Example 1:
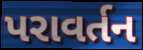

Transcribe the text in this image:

પરાવર્તન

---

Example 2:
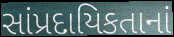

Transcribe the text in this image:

સાંપ્રદાયિકતાનાં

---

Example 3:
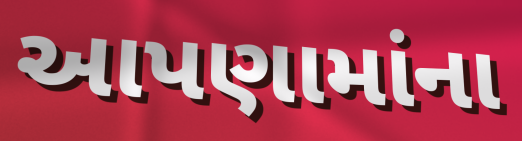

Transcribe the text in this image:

આપણામાંના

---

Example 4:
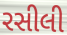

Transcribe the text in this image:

રસીલી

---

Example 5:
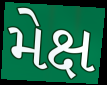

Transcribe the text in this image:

મેક્ષ